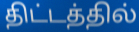
திட்டத்தில்